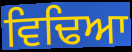
ਵਿਢਿਆ